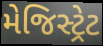
મેજિસ્ટ્રેટ